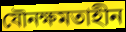
যৌনক্ষমতাহীন